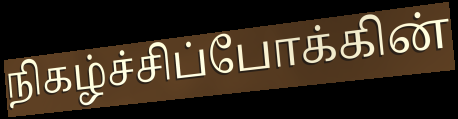
நிகழ்ச்சிப்போக்கின்